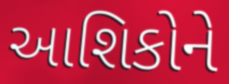
આશિકોને